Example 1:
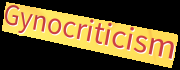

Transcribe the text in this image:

Gynocriticism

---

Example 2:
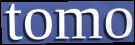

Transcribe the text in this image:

tomo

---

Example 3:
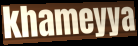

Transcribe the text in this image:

khameyya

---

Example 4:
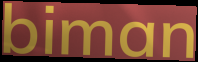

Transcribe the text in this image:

biman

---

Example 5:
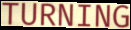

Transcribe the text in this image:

TURNING